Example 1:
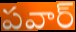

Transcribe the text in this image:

పవార్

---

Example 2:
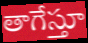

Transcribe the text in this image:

తాగేస్తూ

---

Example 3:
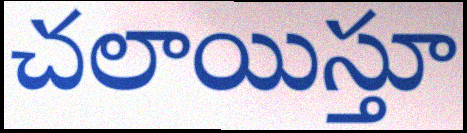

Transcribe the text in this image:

చలాయిస్తూ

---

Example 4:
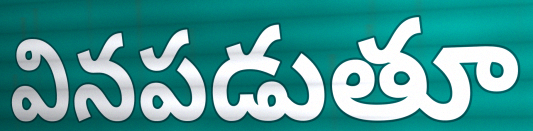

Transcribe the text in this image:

వినపడుతూ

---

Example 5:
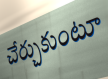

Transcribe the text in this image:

చేర్చుకుంటూ